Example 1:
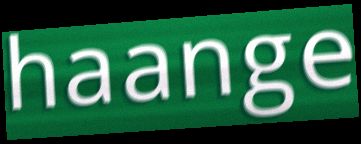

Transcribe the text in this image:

haange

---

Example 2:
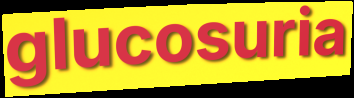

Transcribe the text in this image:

glucosuria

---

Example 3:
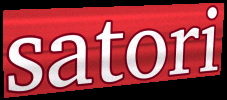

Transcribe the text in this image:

satori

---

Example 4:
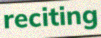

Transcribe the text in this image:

reciting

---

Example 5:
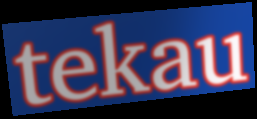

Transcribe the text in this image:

tekau